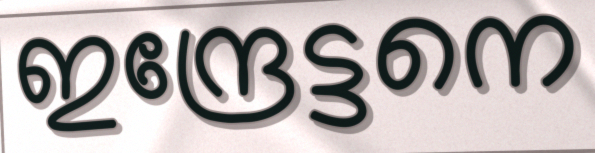
ഇന്ദ്രേട്ടനെ